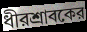
ধীরশ্রাবকের